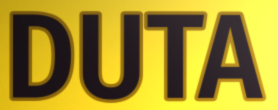
DUTA